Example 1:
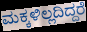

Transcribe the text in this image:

ಮಕ್ಕಳಿಲ್ಲದಿದ್ದರೆ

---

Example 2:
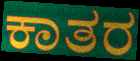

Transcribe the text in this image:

ಕಾತರ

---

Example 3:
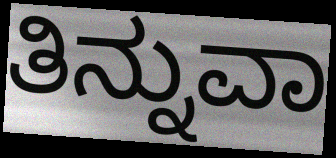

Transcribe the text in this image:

ತಿನ್ನುವಾ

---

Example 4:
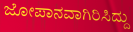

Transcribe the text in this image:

ಜೋಪಾನವಾಗಿರಿಸಿದ್ದು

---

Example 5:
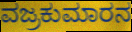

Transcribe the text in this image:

ವಜ್ರಕುಮಾರನ